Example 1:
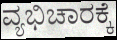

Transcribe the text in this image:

ವ್ಯಭಿಚಾರಕ್ಕೆ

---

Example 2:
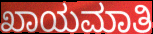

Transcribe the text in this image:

ಖಾಯಮಾತಿ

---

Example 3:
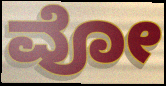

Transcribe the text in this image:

ವೋ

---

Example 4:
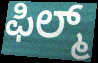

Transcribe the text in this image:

ಫಿಲ್ಮ್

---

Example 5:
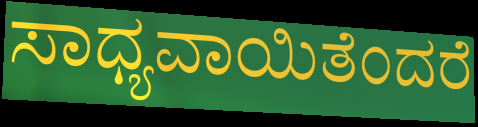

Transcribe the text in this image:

ಸಾಧ್ಯವಾಯಿತೆಂದರೆ